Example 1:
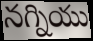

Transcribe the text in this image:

నగ్నియు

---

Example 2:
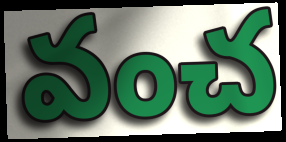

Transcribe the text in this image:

వంచ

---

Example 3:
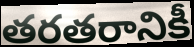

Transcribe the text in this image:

తరతరానికీ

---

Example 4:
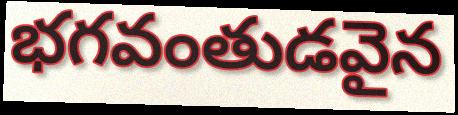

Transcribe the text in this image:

భగవంతుడవైన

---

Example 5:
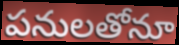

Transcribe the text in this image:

పనులతోనూ